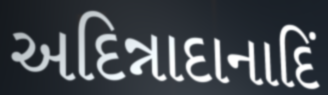
અદિન્નાદાનાદિં